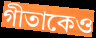
গীতাকেও